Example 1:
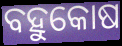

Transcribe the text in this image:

ବହୁକୋଷ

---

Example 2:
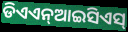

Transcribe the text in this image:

ଡିଏଏନ୍ଆଇସିଏସ୍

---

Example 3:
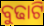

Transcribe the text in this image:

ବୁଢାଟି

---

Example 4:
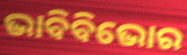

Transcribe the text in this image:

ଭାବିବିଭୋର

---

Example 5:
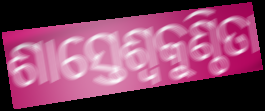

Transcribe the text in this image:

ଶାସ୍ତେଶ୍ବକୁଣ୍ଠିତା